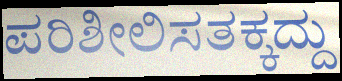
ಪರಿಶೀಲಿಸತಕ್ಕದ್ದು